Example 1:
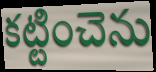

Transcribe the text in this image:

కట్టించెను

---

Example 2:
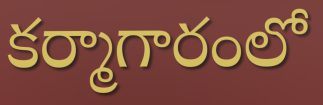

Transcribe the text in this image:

కర్మాగారంలో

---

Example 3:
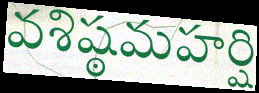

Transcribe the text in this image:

వశిష్ఠమహర్షి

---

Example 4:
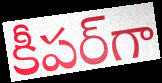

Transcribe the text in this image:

కీపర్‌గా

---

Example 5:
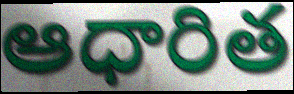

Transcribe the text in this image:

ఆధారిత